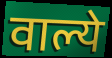
वाल्ये